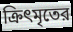
ক্রিৎমৃতের